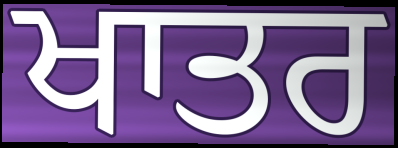
ਖਾਤਰ